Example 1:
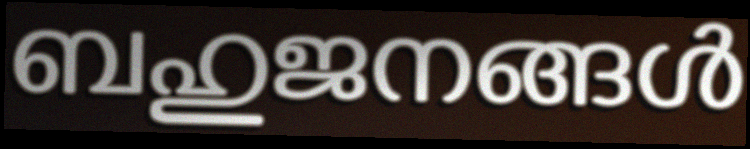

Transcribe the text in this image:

ബഹുജനങ്ങൾ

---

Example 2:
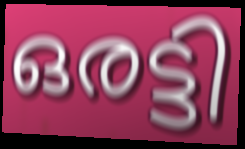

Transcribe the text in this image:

ഒരട്ടി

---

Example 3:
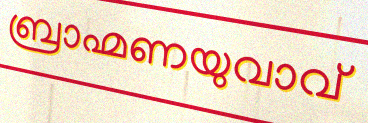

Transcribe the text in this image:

ബ്രാഹ്മണയുവാവ്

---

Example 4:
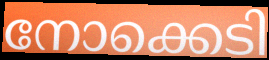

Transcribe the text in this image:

നോക്കെടി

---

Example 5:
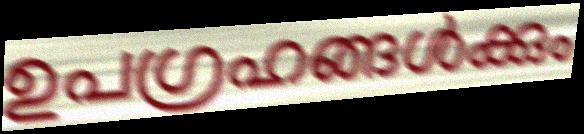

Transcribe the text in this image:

ഉപഗ്രഹങ്ങൾക്കും